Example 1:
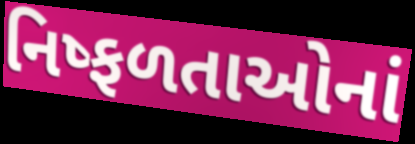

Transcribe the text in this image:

નિષ્ફળતાઓનાં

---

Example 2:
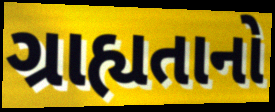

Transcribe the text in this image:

ગ્રાહ્યતાનો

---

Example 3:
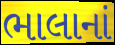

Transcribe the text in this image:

ભાલાનાં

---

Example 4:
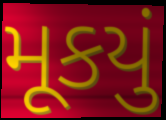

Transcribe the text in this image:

મૂકયું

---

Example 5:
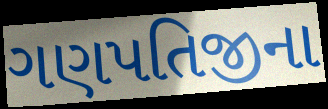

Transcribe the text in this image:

ગણપતિજીના